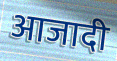
आजादी